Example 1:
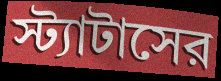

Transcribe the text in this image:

স্ট্যাটাসের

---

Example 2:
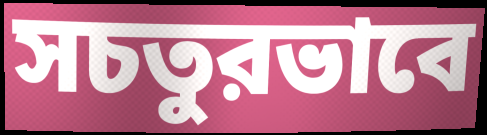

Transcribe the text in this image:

সচতুরভাবে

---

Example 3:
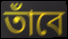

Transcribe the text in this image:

তাঁবে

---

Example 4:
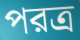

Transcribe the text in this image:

পরত্র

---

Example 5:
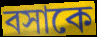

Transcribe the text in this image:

বসাকে